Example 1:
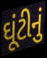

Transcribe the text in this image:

ઘૂંટીનું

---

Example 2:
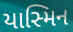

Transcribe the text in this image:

યાસ્મિન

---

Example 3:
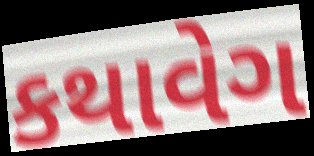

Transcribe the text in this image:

કથાવેગ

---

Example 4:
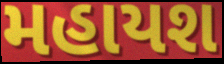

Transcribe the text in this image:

મહાયશ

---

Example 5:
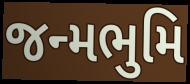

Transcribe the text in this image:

જન્મભુમિ